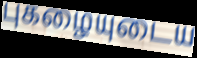
புகழையுடைய